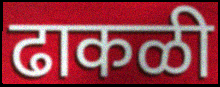
ढाकळी